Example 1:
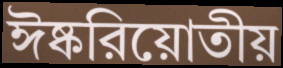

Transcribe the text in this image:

ঈষ্করিয়োতীয়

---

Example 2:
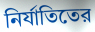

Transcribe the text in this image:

নির্যাতিতের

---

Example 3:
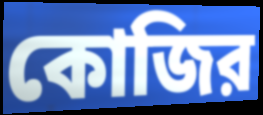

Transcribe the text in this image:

কোজির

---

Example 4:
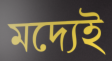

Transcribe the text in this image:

মদ্যেই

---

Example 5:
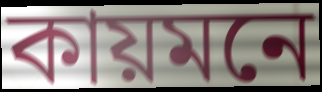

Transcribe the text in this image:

কায়মনে